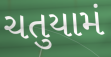
ચતુયામં